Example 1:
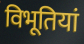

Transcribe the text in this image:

विभूतियां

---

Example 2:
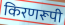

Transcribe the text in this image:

किरणरूपी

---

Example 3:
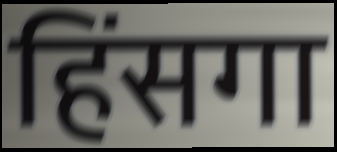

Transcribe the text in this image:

हिंसगा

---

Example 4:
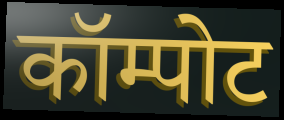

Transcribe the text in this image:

कॉम्पोट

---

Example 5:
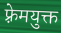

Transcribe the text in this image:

फ़्रेमयुक्त